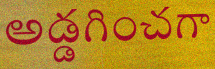
అడ్డగించగా